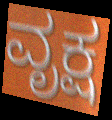
ವೃಕ್ಷ